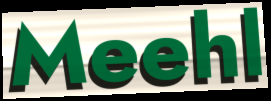
Meehl